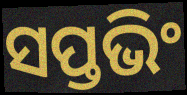
ସପ୍ତଭିଂ